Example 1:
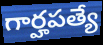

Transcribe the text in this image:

గార్హపత్యే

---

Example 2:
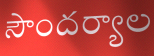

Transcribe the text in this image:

సౌందర్యాల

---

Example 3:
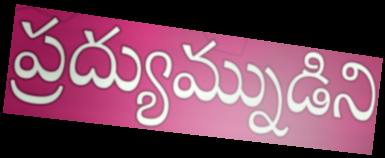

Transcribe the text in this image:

ప్రద్యుమ్నుడిని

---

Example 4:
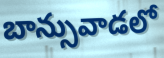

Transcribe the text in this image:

బాన్సువాడలో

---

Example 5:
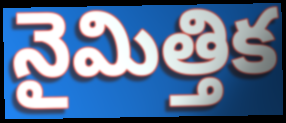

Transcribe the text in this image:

నైమిత్తిక